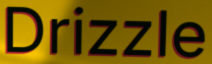
Drizzle